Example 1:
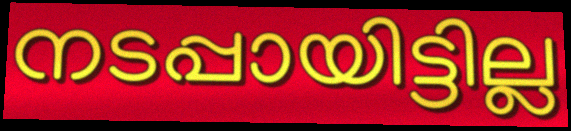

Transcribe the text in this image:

നടപ്പായിട്ടില്ല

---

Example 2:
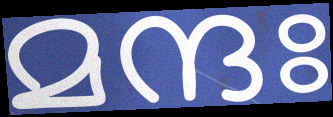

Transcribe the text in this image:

മന്ദഃ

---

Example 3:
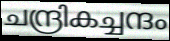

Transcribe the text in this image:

ചന്ദ്രികച്ചന്ദം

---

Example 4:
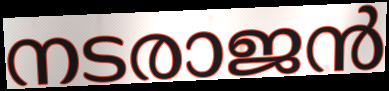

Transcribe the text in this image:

നടരാജൻ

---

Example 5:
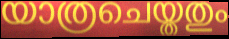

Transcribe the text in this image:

യാത്രചെയ്തതും